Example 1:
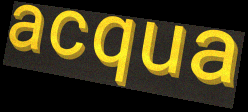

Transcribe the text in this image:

acqua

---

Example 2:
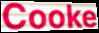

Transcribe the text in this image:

Cooke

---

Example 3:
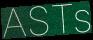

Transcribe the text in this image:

ASTs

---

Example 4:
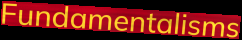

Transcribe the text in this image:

Fundamentalisms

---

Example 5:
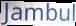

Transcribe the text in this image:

Jambul